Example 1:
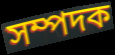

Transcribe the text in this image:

সম্পদক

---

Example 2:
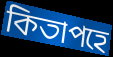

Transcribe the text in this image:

কিতাপহে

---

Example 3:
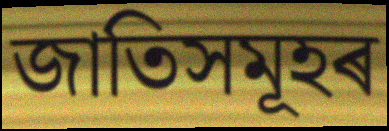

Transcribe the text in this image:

জাতিসমূহৰ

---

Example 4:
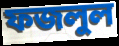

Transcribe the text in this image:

ফজলুল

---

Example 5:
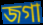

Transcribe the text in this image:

জগা